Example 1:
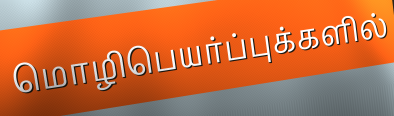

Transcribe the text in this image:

மொழிபெயர்ப்புக்களில்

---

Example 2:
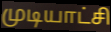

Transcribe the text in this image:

முடியாட்சி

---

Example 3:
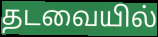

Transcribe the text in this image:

தடவையில்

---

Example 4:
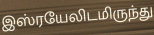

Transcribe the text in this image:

இஸ்ரயேலிடமிருந்து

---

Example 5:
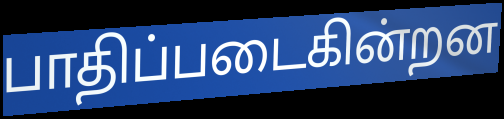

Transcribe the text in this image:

பாதிப்படைகின்றன